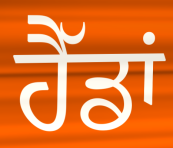
ਹੈੱਡਾਂ